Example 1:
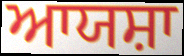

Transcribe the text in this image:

ਆਯਸ਼ਾ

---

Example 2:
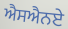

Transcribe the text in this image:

ਐਸਐਨਏ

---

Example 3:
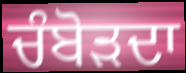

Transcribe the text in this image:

ਚੰਬੋੜਦਾ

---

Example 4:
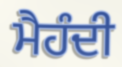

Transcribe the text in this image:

ਮੈਹੰਦੀ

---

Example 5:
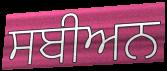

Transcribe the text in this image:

ਸਬੀਅਨ